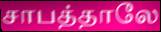
சாபத்தாலே